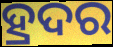
ହ୍ରଦର